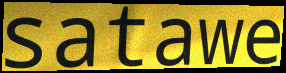
satawe